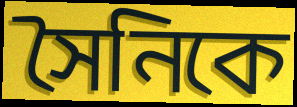
সৈনিকে